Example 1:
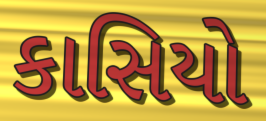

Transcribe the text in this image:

કાસિયો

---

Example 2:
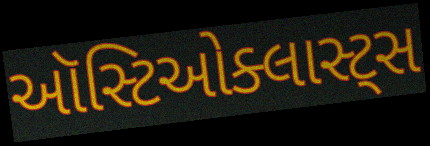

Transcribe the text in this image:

ઑસ્ટિઓક્લાસ્ટ્સ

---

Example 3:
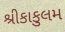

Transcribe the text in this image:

શ્રીકાકુલમ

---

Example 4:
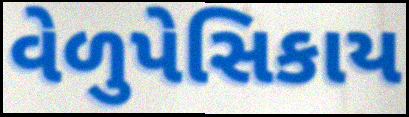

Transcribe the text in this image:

વેળુપેસિકાય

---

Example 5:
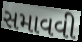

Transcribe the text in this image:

સમાવવી